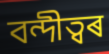
বন্দীত্বৰ